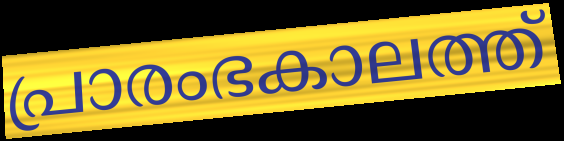
പ്രാരംഭകാലത്ത്